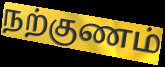
நற்குணம்